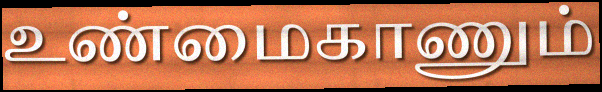
உண்மைகாணும்